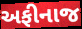
અફીનાજ